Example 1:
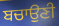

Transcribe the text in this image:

ਬਚਾਉਣੀ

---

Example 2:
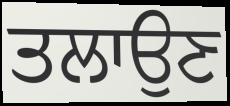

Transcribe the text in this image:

ਤਲਾਉਣ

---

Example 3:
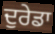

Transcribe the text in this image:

ਦੁਰੇਡਾ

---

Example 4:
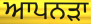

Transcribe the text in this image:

ਆਪਨੜਾ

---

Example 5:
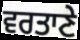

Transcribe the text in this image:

ਵਰਤਾਣੇ